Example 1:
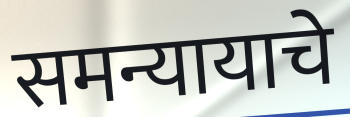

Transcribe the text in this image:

समन्यायाचे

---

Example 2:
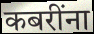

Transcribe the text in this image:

कबरींना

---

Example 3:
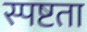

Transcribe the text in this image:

स्पष्टता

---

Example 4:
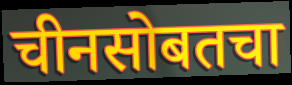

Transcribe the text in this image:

चीनसोबतचा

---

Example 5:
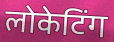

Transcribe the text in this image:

लोकेटिंग